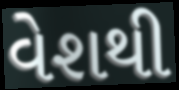
વેશથી